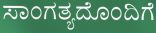
ಸಾಂಗತ್ಯದೊಂದಿಗೆ